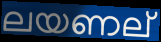
ലയണല്